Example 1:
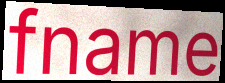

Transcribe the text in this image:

fname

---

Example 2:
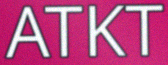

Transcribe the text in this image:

ATKT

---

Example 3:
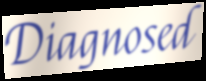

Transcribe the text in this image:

Diagnosed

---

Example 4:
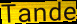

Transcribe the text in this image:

Tande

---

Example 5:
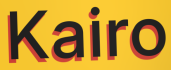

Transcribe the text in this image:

Kairo